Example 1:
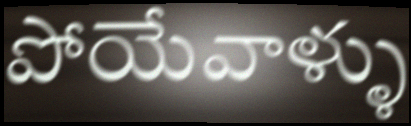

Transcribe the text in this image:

పోయేవాళ్ళు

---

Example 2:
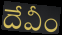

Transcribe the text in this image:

దేవీం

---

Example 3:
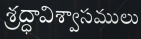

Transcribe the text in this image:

శ్రద్ధావిశ్వాసములు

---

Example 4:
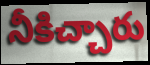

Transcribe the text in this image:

నీకిచ్చారు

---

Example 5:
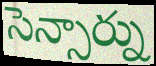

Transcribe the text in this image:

సెన్సార్ను